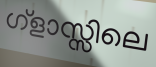
ഗ്ളാസ്സിലെ